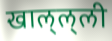
खाल्ल्ली